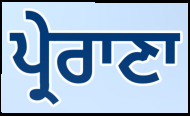
ਪ੍ਰੇਰਾਣਾ